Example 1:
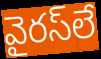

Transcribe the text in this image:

వైరస్‌లే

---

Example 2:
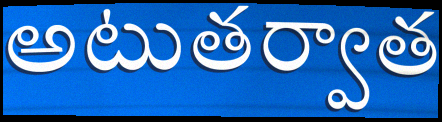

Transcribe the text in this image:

అటుతర్వాత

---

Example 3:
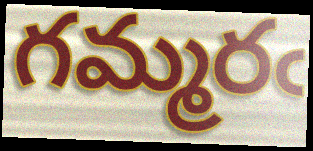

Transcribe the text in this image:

గమ్మరఁ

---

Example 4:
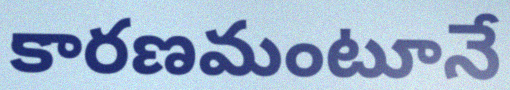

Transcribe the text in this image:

కారణమంటూనే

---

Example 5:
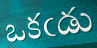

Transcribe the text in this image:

ఒకఁడు